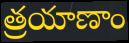
త్రయాణాం